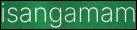
isangamam